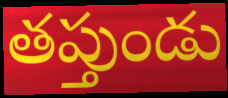
తప్తుండు